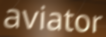
aviator